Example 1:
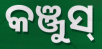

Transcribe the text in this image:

କଞ୍ଜୁସ୍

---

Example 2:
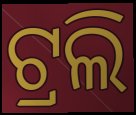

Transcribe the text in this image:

ଟ୍ରଲି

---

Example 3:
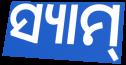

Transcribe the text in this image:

ସ୍ୟାମ୍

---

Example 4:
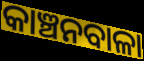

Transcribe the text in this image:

କାଞ୍ଚନବାଳା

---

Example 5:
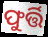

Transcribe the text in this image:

ଫୁର୍ତ୍ତି